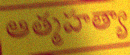
ఆత్మహత్యా